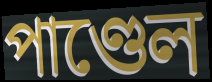
পাণ্ডেল